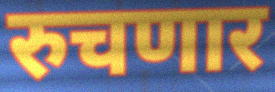
रुचणार